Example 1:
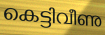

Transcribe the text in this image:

കെട്ടിവീണു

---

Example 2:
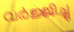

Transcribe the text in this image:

വർജ്ജിച്ചു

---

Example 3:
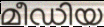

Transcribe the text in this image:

മീഡിയ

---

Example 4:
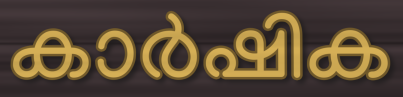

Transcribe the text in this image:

കാർഷിക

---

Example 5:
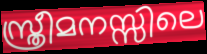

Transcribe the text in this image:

സ്ത്രീമനസ്സിലെ